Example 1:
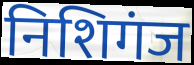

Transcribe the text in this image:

निशिगंज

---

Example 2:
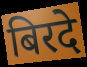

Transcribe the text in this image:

बिरदे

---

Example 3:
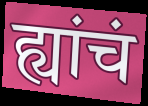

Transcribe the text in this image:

ह्यांचं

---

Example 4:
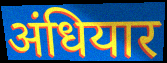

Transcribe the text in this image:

अंधियार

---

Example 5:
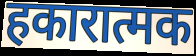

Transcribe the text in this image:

हकारात्मक